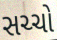
સચ્ચો